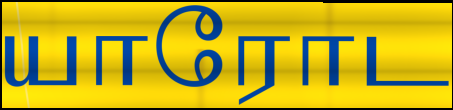
யாரோட